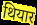
थियार